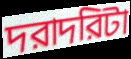
দরাদরিটা